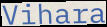
Vihara